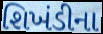
શિખંડીના